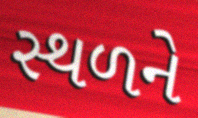
સ્થળને